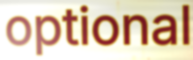
optional